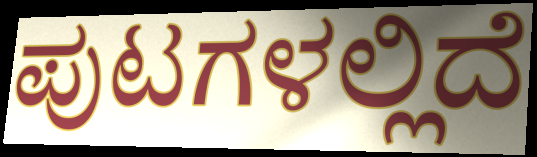
ಪುಟಗಳಲ್ಲಿದೆ